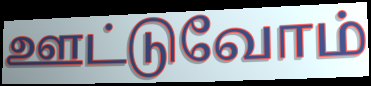
ஊட்டுவோம்